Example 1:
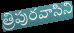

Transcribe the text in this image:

త్రిపురవాసిని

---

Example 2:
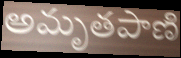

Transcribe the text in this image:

అమృతపాణి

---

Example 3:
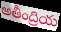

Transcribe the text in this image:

అతీంద్రియ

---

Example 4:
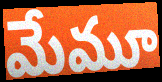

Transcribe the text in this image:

మేమూ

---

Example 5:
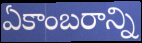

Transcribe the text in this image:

ఏకాంబరాన్ని